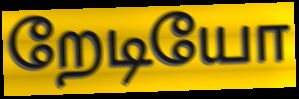
றேடியோ